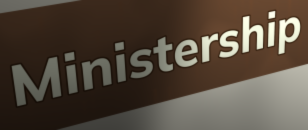
Ministership